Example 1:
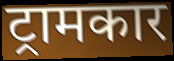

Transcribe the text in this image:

ट्रामकार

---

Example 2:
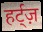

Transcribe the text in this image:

हर्ट्ज़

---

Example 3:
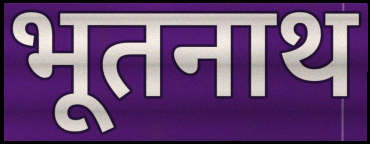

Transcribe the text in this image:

भूतनाथ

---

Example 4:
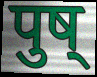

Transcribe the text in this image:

पुष्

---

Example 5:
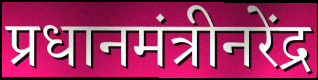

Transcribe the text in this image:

प्रधानमंत्रीनरेंद्र